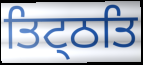
ਤਿਟ੍ਠਤਿ